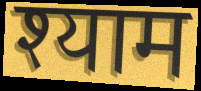
श्याम